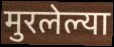
मुरलेल्या